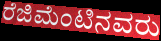
ರೆಜಿಮೆಂಟಿನವರು